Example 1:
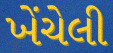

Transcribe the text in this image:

ખેંચેલી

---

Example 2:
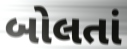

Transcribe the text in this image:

બોલતાં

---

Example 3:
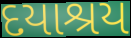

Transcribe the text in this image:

દયાશ્રય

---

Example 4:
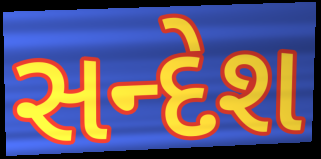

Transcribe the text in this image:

સન્દેશ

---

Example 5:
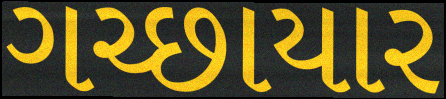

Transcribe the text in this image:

ગચ્છાયાર